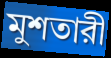
মুশতারী